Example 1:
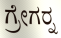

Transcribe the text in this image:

ಗ್ರೇಗರ್‍ನ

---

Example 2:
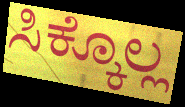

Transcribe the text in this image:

ಸಿಕ್ಕೊಲ್ಲ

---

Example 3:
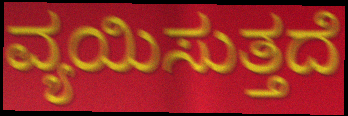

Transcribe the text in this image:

ವ್ಯಯಿಸುತ್ತದೆ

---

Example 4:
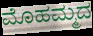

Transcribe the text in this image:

ಮೊಹಮ್ಮದ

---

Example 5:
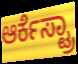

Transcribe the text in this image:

ಆರ್ಕೆಸ್ಟ್ರಾ